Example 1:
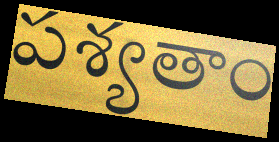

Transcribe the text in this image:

పశ్యతాం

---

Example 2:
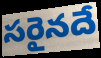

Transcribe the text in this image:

సరైనదే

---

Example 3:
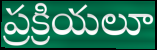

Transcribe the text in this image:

ప్రక్రియలూ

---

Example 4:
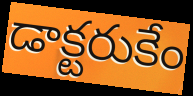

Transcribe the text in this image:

డాక్టరుకేం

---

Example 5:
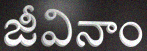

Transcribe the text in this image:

జీవినాం